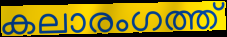
കലാരംഗത്ത്